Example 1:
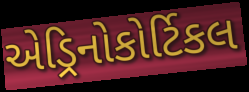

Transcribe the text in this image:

એડ્રિનોકોર્ટિકલ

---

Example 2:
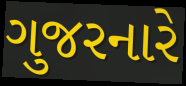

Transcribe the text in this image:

ગુજરનારે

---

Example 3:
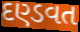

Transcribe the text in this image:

દણ્ડવત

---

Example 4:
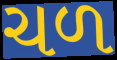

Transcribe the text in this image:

ચળ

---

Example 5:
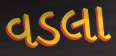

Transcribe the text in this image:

વડલા